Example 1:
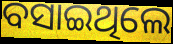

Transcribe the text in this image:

ବସାଇଥିଲେ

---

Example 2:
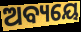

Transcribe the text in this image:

ଅବ୍ୟୟେ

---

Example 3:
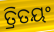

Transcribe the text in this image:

ତ୍ରିତୟଂ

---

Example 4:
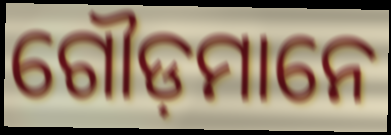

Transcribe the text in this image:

ଗୌଡ଼ମାନେ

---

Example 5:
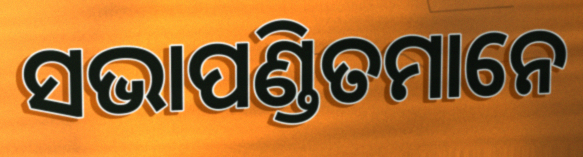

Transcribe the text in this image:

ସଭାପଣ୍ଡିତମାନେ